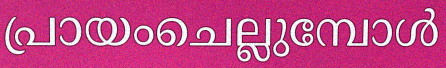
പ്രായംചെല്ലുമ്പോൾ